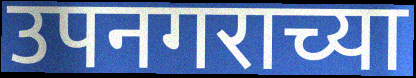
उपनगराच्या